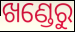
ଖଣ୍ଡେରୁ